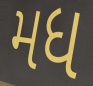
મધ